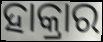
ହାକ୍ରାର